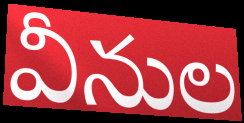
వీనుల